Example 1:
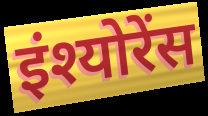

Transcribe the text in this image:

इंश्योरेंस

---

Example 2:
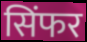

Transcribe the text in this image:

सिंफर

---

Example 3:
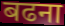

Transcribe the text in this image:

बढना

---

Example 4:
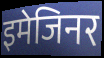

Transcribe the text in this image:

इमेजिनर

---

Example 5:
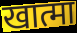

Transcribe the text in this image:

खात्मा